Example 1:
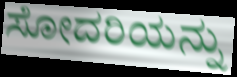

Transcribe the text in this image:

ಸೋದರಿಯನ್ನು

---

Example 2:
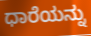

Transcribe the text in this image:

ಧಾರೆಯನ್ನು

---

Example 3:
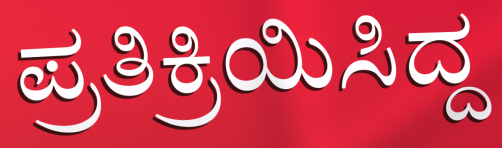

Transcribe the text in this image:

ಪ್ರತಿಕ್ರಿಯಿಸಿದ್ದ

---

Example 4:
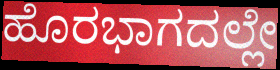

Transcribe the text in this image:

ಹೊರಭಾಗದಲ್ಲೇ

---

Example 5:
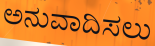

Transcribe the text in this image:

ಅನುವಾದಿಸಲು